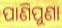
ପାଣିପୁଣା